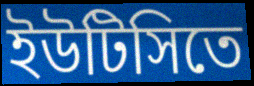
ইউটিসিতে